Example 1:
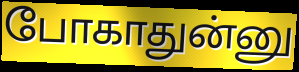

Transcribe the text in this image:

போகாதுன்னு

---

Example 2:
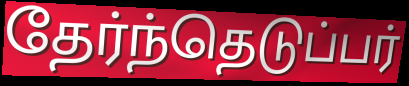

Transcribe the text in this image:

தேர்ந்தெடுப்பர்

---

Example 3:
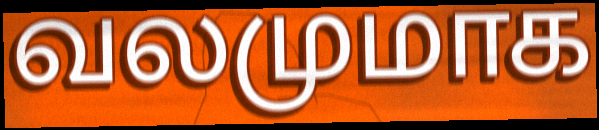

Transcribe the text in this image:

வலமுமாக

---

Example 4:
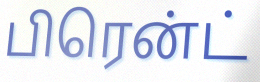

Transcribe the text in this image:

பிரென்ட்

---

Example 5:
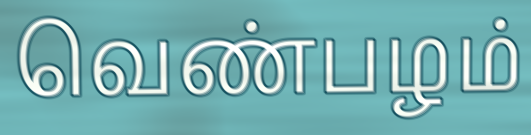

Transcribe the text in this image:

வெண்பழம்